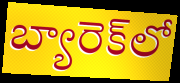
బ్యారెక్‌లో